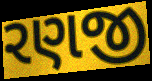
રણજી